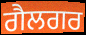
ਗੈਲਗਰ